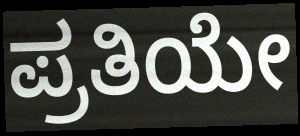
ಪ್ರತಿಯೇ